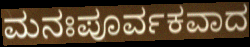
ಮನಃಪೂರ್ವಕವಾದ